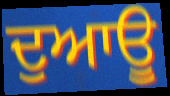
ਦੁਆਊ